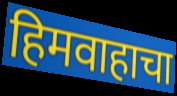
हिमवाहाचा